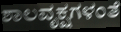
ಶಾಲವೃಕ್ಷಗಳಂತೆ